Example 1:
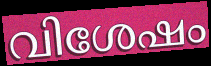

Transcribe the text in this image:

വിശേഷം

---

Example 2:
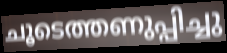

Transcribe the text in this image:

ചൂടെത്തണുപ്പിച്ചു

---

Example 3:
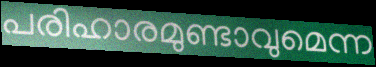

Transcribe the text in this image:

പരിഹാരമുണ്ടാവുമെന്ന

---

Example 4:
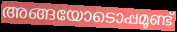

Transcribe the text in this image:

അങ്ങയോടൊപ്പമുണ്ട്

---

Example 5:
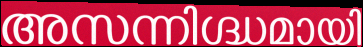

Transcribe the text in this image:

അസന്നിഗ്ദ്ധമായി